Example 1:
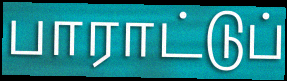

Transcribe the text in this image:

பாராட்டுப்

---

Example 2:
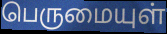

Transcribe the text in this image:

பெருமையுள்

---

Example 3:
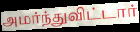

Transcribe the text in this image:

அமர்ந்துவிட்டார்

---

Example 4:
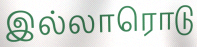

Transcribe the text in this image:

இல்லாரொடு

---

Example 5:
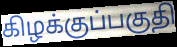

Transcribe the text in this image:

கிழக்குப்பகுதி